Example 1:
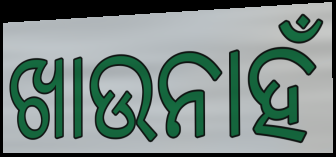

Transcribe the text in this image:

ଖାଉନାହଁ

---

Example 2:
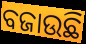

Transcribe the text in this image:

ବଜାଉଛି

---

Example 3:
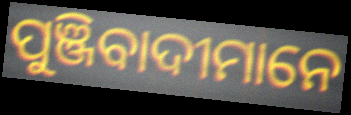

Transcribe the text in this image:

ପୁଞ୍ଜିବାଦୀମାନେ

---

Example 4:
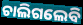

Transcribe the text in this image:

ଚାଲିଗଲେବି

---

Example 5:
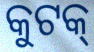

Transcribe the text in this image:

କୁଟକ୍